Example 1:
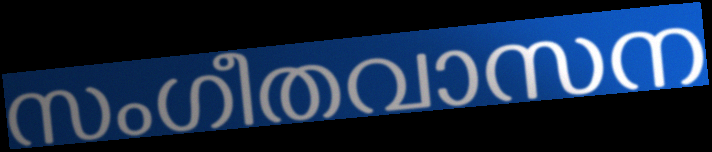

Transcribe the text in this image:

സംഗീതവാസന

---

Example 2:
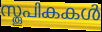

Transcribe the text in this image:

സ്തൂപികകൾ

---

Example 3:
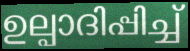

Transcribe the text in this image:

ഉല്പാദിപ്പിച്ച്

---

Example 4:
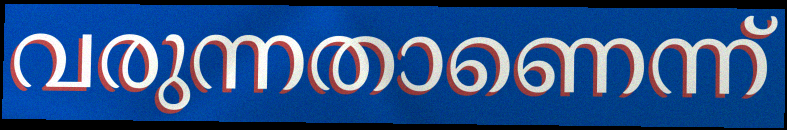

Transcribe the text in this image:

വരുന്നതാണെന്ന്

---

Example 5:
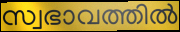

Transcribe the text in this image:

സ്വഭാവത്തിൽ